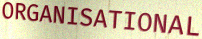
ORGANISATIONAL